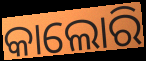
କାଲୋରି